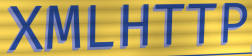
XMLHTTP